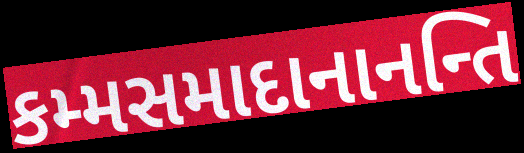
કમ્મસમાદાનાનન્તિ